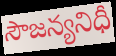
సౌజన్యనిధీ